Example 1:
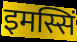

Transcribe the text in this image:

इमस्सिं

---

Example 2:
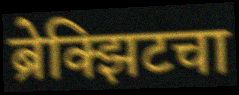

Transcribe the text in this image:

ब्रेक्झिटचा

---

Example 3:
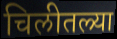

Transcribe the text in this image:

चिलीतल्या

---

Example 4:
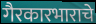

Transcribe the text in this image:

गैरकारभाराचे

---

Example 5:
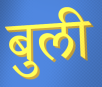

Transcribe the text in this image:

बुली